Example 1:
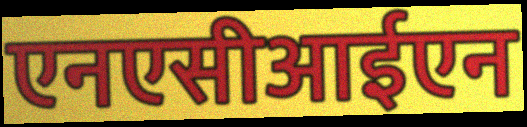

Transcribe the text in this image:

एनएसीआईएन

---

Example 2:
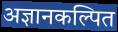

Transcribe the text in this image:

अज्ञानकल्पित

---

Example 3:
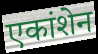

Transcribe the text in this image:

एकांशेन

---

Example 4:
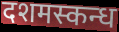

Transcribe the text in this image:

दशमस्कन्ध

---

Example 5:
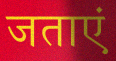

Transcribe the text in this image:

जताएं